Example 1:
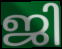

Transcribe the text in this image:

ജി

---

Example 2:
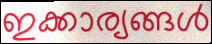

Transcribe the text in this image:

ഇക്കാര്യങ്ങൾ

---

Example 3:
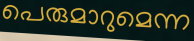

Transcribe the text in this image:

പെരുമാറുമെന്ന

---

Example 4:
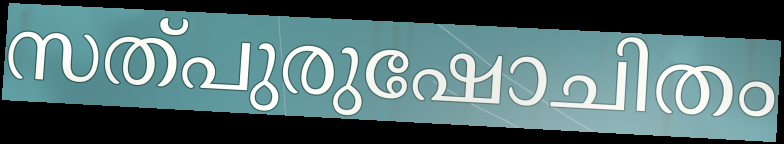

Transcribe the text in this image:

സത്പുരുഷോചിതം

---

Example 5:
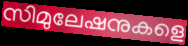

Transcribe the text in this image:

സിമുലേഷനുകളെ